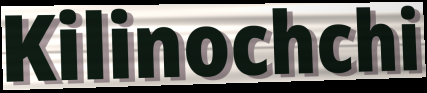
Kilinochchi